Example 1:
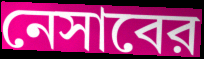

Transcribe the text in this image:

নেসাবের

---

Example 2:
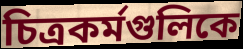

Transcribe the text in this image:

চিত্রকর্মগুলিকে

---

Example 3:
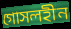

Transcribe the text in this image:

গোসলহীন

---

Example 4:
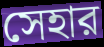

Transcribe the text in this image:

সেহার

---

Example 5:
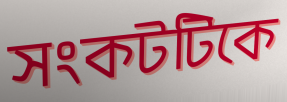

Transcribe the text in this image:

সংকটটিকে